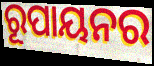
ରୂପାୟନର